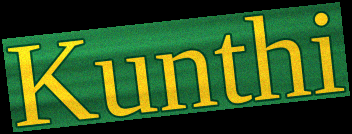
Kunthi